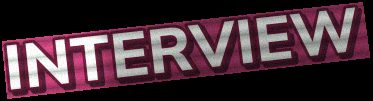
INTERVIEW